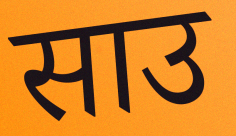
साउ